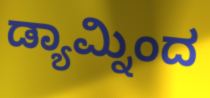
ಡ್ಯಾಮ್ನಿಂದ